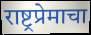
राष्ट्रप्रेमाचा